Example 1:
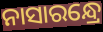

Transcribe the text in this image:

ନାସାରନ୍ଧ୍ରେ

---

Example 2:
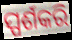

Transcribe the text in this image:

ସ୍ପର୍ଶକରି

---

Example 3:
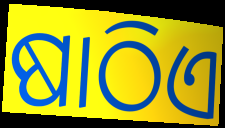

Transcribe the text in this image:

ଷାଠିଏ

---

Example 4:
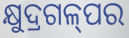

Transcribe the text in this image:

କ୍ଷୁଦ୍ରଗଳ୍‌ପର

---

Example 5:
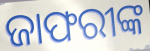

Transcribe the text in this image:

ଜାଫରୀଙ୍କ